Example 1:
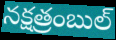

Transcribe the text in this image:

నక్షత్రంబుల్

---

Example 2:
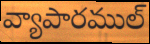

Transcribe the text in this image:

వ్యాపారముల్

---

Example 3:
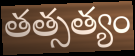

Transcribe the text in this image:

తత్సత్యం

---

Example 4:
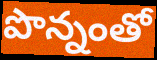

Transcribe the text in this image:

పొన్నంతో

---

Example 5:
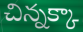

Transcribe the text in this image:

చిన్నక్కా